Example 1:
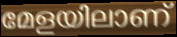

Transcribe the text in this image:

മേളയിലാണ്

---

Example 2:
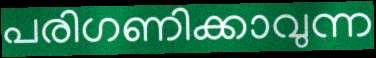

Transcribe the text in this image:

പരിഗണിക്കാവുന്ന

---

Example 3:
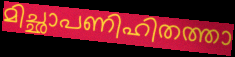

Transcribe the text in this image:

മിച്ഛാപണിഹിതത്താ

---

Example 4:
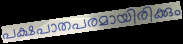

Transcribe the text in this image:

പക്ഷപാതപരമായിരിക്കും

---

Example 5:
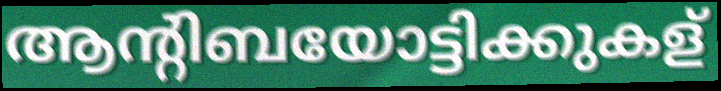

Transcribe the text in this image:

ആന്റിബയോട്ടിക്കുകള്